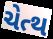
ચેત્થ